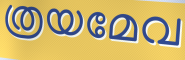
ത്രയമേവ